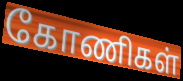
கோணிகள்